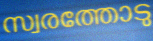
സ്വരത്തോടു